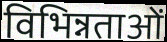
विभिन्नताओं